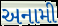
અનામી